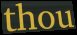
thou